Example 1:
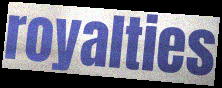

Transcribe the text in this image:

royalties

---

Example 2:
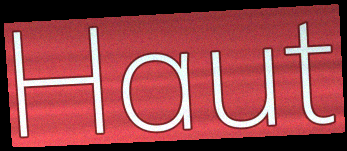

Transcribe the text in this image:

Haut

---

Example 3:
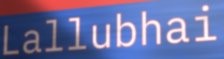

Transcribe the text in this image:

Lallubhai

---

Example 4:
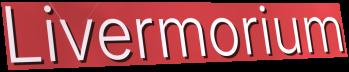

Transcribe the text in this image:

Livermorium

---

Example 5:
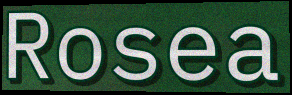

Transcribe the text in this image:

Rosea